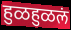
हुळहुळलं